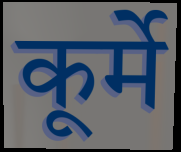
कूर्मे